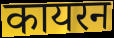
कायरन